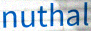
nuthal